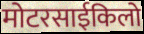
मोटरसाईकिलो